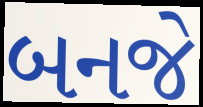
બનજે